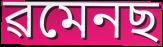
ৱমেনছ